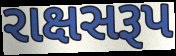
રાક્ષસરૂપ